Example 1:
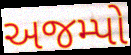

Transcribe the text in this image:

અજમ્પો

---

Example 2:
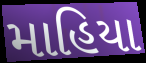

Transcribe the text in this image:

માહિયા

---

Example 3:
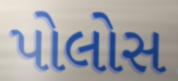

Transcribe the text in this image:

પોલોસ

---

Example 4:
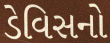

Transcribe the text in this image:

ડેવિસનો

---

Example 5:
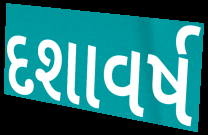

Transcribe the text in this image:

દશાવર્ષ